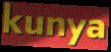
kunya